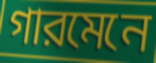
গারমেনে